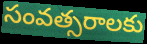
సంవత్సరాలకు